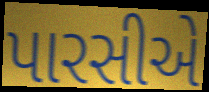
પારસીએ